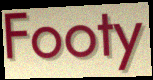
Footy